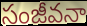
సంజీవనా